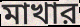
মাখার